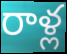
రాళ్ల